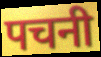
पचनी